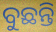
ବୁଛନ୍ତି